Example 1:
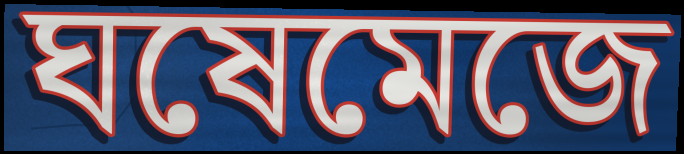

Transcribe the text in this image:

ঘষেমেজে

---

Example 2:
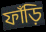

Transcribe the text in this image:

ফাঁড়ি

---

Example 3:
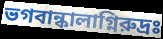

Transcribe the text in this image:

ভগবান্কালাগ্নিরুদ্রঃ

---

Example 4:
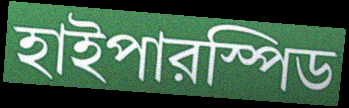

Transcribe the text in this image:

হাইপারস্পিড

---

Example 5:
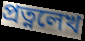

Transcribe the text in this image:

প্রত্নলেখ